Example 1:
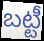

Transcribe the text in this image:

బట్టీ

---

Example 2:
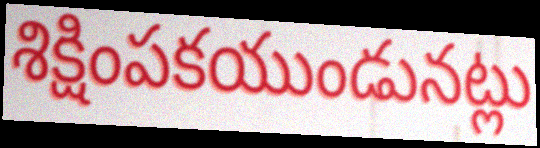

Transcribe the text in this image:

శిక్షింపకయుండునట్లు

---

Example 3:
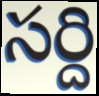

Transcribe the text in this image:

సర్ది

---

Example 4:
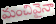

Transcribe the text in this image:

మంచివైనా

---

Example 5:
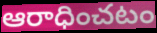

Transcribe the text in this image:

ఆరాధించటం